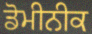
ਡੋਮੀਨੀਕ